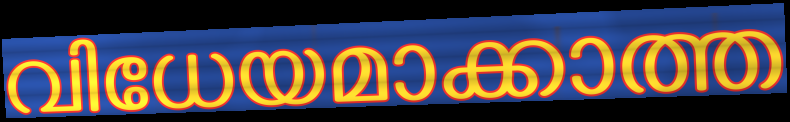
വിധേയമാക്കാത്ത